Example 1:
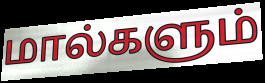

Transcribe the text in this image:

மால்களும்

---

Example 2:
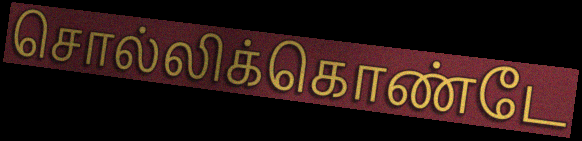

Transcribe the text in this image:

சொல்லிக்கொண்டே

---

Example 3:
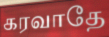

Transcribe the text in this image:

கரவாதே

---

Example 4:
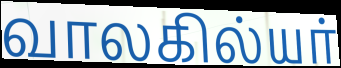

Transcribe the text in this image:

வாலகில்யர்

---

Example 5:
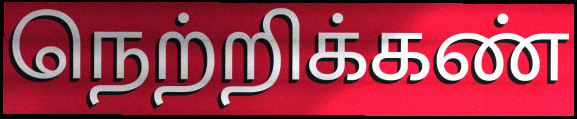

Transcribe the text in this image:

நெற்றிக்கண்